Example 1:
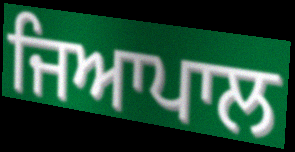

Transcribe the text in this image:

ਜਿਆਪਾਲ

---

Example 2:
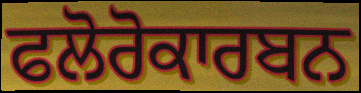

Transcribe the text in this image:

ਫਲੋਰੋਕਾਰਬਨ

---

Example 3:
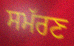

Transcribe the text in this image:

ਸਮੱਰਣ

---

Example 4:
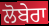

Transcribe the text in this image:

ਲੋਬੇਰਾ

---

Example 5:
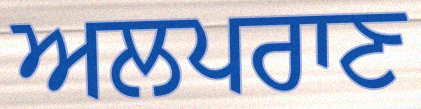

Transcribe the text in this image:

ਅਲਪਰਾਣ